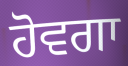
ਹੋਵਗਾ